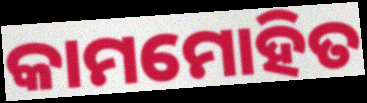
କାମମୋହିତ